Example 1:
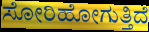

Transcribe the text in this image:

ಸೋರಿಹೋಗುತ್ತಿದೆ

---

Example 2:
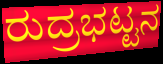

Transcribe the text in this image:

ರುದ್ರಭಟ್ಟನ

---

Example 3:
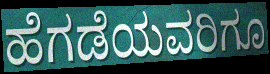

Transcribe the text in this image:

ಹೆಗಡೆಯವರಿಗೂ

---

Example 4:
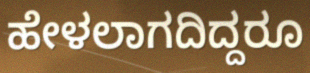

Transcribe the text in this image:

ಹೇಳಲಾಗದಿದ್ದರೂ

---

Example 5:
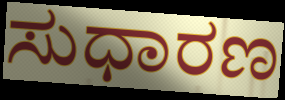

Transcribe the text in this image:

ಸುಧಾರಣ